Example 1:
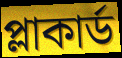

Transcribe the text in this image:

প্লাকার্ড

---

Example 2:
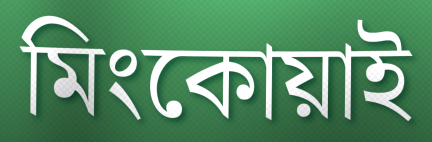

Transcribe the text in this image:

মিংকোয়াই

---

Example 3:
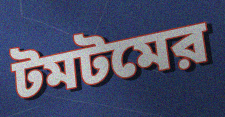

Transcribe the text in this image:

টমটমের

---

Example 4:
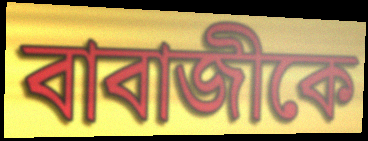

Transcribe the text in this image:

বাবাজীকে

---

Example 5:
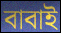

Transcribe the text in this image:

বাবাই